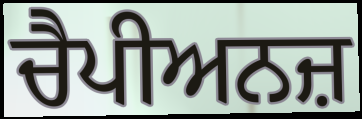
ਚੈਪੀਅਨਜ਼